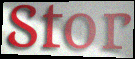
Stor